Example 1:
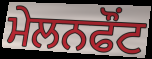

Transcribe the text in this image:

ਮੇਲਨਫੌਂਟ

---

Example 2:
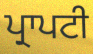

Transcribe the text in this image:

ਪ੍ਰਾਪਟੀ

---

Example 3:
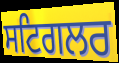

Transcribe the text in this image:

ਸਟਿਗਲਰ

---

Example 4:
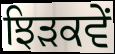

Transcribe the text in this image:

ਝਿੜਕਵੇਂ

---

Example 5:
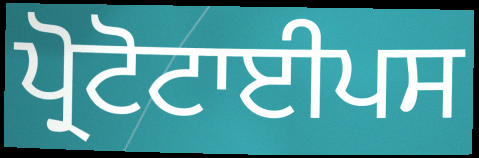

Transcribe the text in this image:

ਪ੍ਰੋਟੋਟਾਈਪਸ